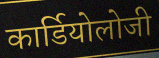
कार्डियोलोजी